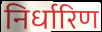
निर्धारिण